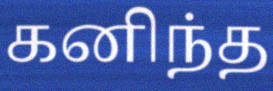
கனிந்த